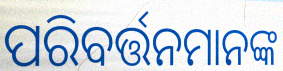
ପରିବର୍ତ୍ତନମାନଙ୍କ